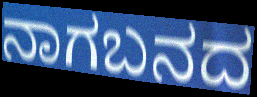
ನಾಗಬನದ